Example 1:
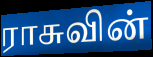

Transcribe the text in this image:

ராசுவின்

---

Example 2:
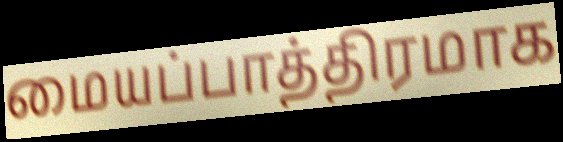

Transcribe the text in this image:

மையப்பாத்திரமாக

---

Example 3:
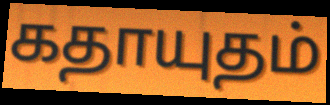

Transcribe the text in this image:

கதாயுதம்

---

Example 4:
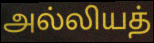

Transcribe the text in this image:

அல்லியத்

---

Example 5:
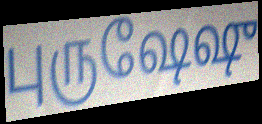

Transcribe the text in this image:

புருஷேஷு